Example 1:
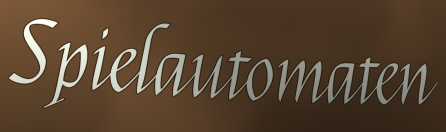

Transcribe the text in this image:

Spielautomaten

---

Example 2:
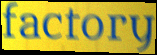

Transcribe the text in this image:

factory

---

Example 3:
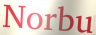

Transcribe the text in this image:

Norbu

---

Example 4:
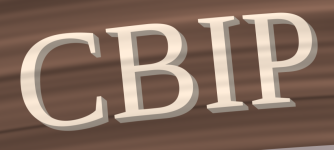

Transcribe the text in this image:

CBIP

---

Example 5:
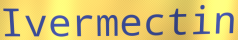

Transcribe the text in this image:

Ivermectin